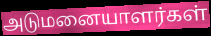
அடுமனையாளர்கள்